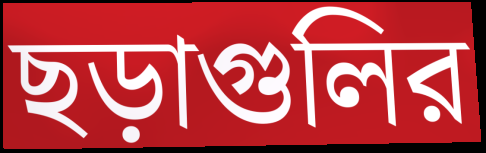
ছড়াগুলির